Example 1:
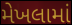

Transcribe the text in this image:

મેખલામાં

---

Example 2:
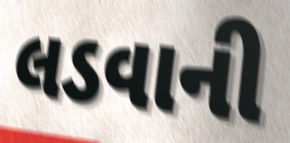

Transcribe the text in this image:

લડવાની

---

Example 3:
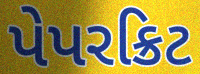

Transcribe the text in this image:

પેપરક્રિટ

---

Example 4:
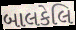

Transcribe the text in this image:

બાલકેલિ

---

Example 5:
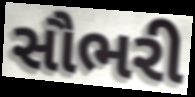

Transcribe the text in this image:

સૌભરી